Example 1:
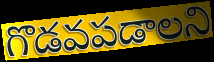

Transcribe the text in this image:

గొడవపడాలని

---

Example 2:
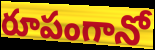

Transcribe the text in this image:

రూపంగానో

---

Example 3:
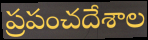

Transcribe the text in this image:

ప్రపంచదేశాల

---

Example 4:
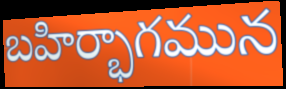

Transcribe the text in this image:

బహిర్భాగమున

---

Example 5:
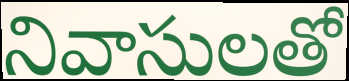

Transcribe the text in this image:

నివాసులతో